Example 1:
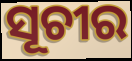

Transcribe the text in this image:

ସୂଚୀର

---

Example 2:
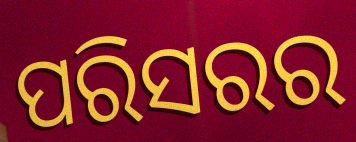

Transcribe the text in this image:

ପରିସରର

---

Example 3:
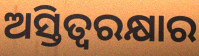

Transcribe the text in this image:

ଅସ୍ତିତ୍ୱରକ୍ଷାର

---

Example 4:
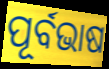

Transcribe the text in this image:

ପୂର୍ବଭାଷ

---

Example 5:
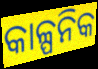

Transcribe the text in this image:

କାଳ୍ପନିକ